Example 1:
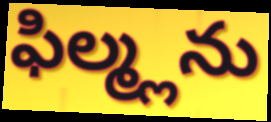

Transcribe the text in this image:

ఫిల్మ్లను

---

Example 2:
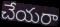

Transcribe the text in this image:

చేయరా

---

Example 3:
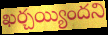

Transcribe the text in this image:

ఖర్చయ్యిందని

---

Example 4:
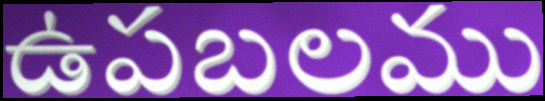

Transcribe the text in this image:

ఉపబలము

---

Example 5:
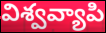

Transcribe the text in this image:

విశ్వవ్యాపి